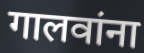
गालवांना